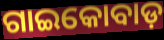
ଗାଇକୋବାଡ଼